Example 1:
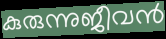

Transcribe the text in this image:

കുരുന്നുജീവൻ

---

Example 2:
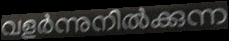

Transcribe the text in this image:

വളർന്നുനിൽക്കുന്ന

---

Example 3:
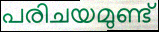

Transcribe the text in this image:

പരിചയമുണ്ട്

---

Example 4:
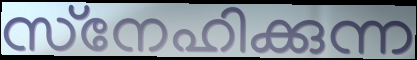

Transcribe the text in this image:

സ്‌നേഹിക്കുന്ന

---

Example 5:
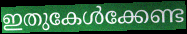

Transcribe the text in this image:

ഇതുകേൾക്കേണ്ട